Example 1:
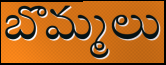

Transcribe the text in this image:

బొమ్మలు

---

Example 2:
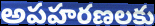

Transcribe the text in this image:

అపహరణలకు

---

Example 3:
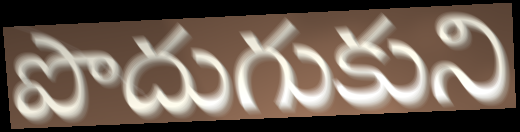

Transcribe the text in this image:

పొదుగుకుని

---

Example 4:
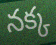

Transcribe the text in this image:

నక్క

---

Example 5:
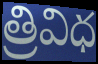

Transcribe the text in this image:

త్రివిధ